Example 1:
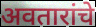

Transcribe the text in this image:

अवतारांचे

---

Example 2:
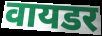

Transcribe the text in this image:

वायडर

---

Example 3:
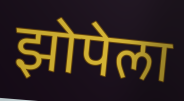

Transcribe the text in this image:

झोपेला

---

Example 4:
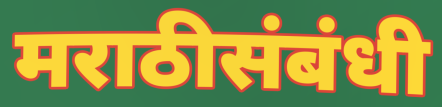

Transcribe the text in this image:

मराठीसंबंधी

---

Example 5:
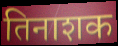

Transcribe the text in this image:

तिनाशक